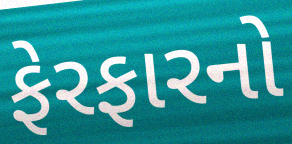
ફેરફારનો